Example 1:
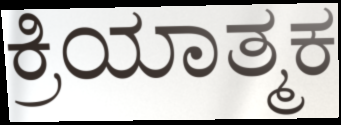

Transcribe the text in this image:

ಕ್ರಿಯಾತ್ಮಕ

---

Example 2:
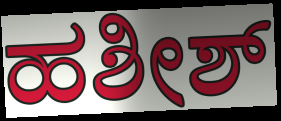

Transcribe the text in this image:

ಹಶೀಶ್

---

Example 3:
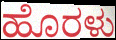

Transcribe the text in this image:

ಹೊರಳು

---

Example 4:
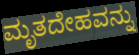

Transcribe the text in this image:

ಮೃತದೇಹವನ್ನು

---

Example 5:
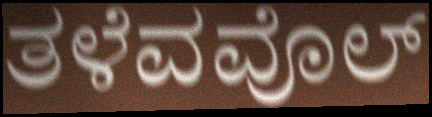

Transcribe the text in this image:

ತಳೆವವೊಲ್